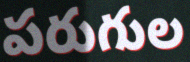
పరుగుల